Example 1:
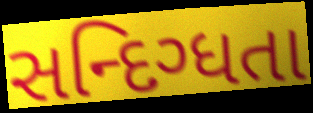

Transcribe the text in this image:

સન્દિગ્ધતા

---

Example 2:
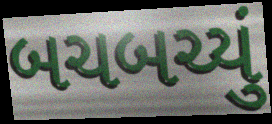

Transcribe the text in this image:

બચબચ્યું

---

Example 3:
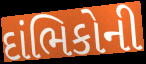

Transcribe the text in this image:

દાંભિકોની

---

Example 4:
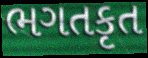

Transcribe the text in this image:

ભગતકૃત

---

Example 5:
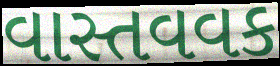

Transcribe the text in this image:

વાસ્તવવક